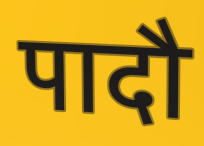
पादौ